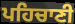
ਪਹਿਚਾਣੀ